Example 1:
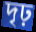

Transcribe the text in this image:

দৃঢ়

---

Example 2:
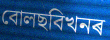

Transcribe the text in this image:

বোলছবিখনৰ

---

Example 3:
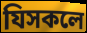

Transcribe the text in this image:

যিসকলে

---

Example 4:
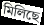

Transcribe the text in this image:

মিলিছে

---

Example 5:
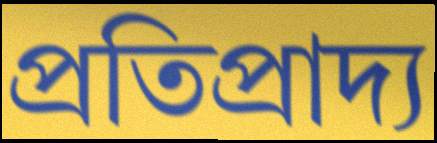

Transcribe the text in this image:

প্ৰতিপ্ৰাদ্য